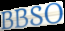
BBSO